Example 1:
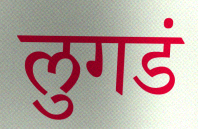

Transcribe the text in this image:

लुगडं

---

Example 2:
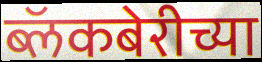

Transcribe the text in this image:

ब्लॅकबेरीच्या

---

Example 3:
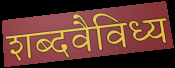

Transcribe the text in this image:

शब्दवैविध्य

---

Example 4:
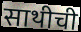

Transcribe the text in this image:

साथीची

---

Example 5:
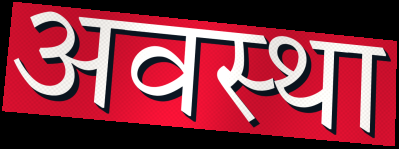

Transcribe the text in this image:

अवस्था